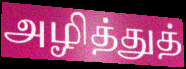
அழித்துத்